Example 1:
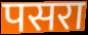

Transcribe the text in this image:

पसरा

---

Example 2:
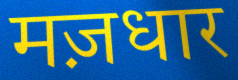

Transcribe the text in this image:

मज़धार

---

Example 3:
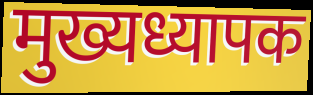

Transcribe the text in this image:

मुख्यध्यापक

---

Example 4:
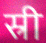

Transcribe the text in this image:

स्री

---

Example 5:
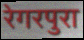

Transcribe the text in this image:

रेगरपुरा